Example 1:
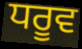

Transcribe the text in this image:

ਧਰੂਵ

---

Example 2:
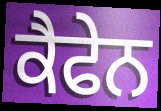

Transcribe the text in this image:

ਕੈਫੇਨ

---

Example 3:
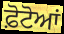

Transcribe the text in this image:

ਫ਼ੋਟੋਆਂ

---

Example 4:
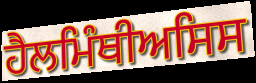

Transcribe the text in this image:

ਹੈਲਮਿੰਥੀਅਸਿਸ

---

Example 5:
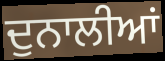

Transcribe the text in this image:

ਦੁਨਾਲੀਆਂ